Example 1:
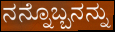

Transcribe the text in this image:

ನನ್ನೊಬ್ಬನನ್ನು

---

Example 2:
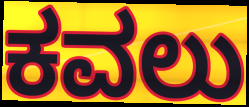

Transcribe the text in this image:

ಕವಲು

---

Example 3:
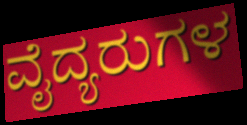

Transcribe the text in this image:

ವೈದ್ಯರುಗಳ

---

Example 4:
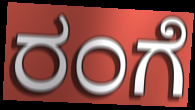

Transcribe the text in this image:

ರಂಗೆ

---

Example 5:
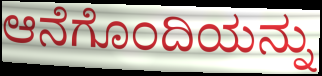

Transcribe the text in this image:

ಆನೆಗೊಂದಿಯನ್ನು